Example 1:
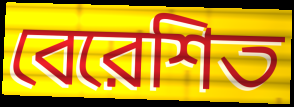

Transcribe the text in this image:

বেরেশিত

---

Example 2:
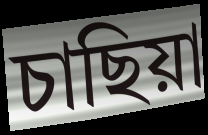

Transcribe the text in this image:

চাছিয়া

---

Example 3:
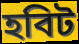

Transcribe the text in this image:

হবিট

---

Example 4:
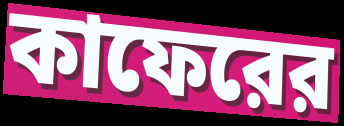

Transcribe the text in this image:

কাফেরের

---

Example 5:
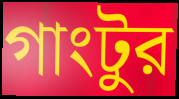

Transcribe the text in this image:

গাংটুর